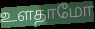
உளதாமோ